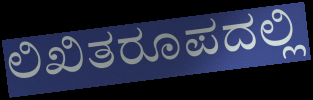
ಲಿಖಿತರೂಪದಲ್ಲಿ